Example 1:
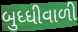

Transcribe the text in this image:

બુધ્ધીવાળી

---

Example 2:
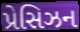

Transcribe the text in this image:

પ્રેસિઝન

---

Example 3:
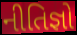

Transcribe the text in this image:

નીતિજ્ઞો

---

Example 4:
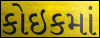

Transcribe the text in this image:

કોઇકમાં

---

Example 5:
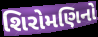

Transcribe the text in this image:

શિરોમણિનો